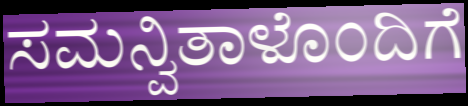
ಸಮನ್ವಿತಾಳೊಂದಿಗೆ